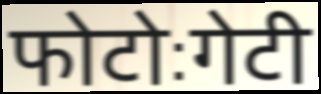
फोटोःगेटी